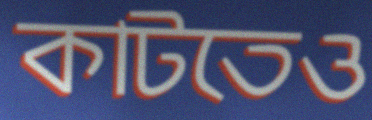
কাটতেও